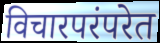
विचारपरंपरेत